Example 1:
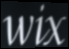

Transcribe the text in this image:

wix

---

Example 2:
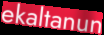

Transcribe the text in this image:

ekaltanun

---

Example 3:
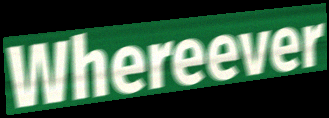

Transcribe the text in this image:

Whereever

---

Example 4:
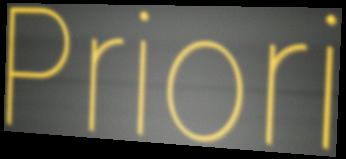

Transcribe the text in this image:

Priori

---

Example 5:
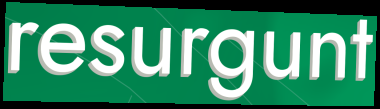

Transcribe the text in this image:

resurgunt